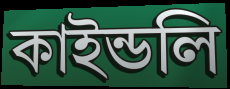
কাইন্ডলি